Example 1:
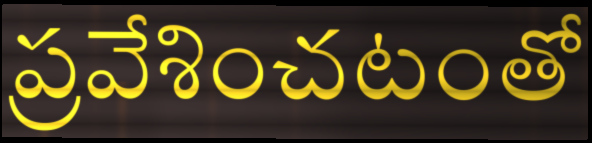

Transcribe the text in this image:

ప్రవేశించటంతో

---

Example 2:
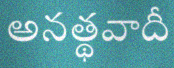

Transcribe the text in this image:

అనత్థవాదీ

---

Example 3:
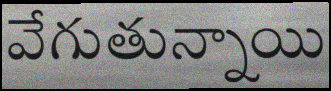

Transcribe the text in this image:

వేగుతున్నాయి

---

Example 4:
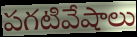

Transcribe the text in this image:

పగటివేషాలు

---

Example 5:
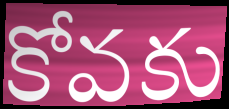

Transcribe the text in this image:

కోవకు